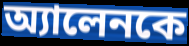
অ্যালেনকে